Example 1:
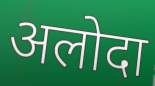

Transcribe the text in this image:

अलोदा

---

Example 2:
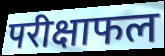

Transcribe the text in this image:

परीक्षाफल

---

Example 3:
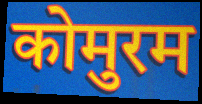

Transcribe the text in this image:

कोमुरम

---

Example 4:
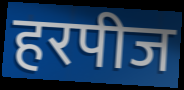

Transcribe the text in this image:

हरपीज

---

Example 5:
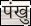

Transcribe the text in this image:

पंखु